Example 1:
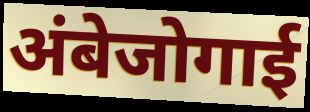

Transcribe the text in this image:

अंबेजोगाई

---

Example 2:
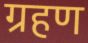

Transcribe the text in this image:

ग्रहण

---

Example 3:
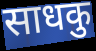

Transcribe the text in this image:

साधकु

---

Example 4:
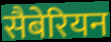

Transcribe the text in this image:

सैबेरियन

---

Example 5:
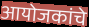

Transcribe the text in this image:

आयोजकांचे